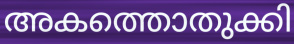
അകത്തൊതുക്കി